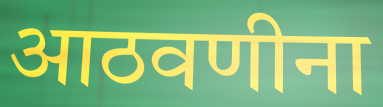
आठवणीना